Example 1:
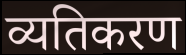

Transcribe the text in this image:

व्यतिकरण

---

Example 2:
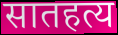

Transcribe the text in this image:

सातहत्य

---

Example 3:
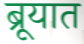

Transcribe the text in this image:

ब्रूयात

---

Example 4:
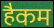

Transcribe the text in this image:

हैकम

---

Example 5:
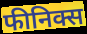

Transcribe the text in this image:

फीनिक्स